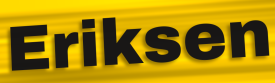
Eriksen